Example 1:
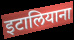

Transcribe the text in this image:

इटालियाना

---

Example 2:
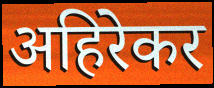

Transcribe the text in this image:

अहिरेकर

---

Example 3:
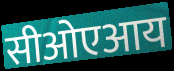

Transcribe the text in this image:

सीओएआय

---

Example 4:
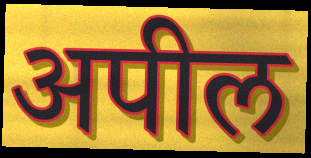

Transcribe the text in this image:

अपील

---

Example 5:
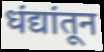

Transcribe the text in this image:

धंद्यांतून